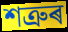
শত্ৰুৰ